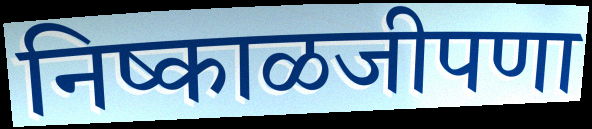
निष्काळजीपणा